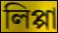
লিপ্পা